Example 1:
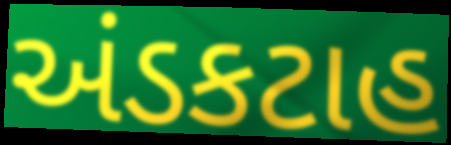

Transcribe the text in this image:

અંડકટાહ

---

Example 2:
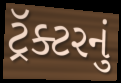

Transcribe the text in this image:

ટ્રૅક્ટરનું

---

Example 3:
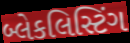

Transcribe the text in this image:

બ્લેકલિસ્ટિંગ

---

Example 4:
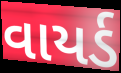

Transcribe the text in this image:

વાયર્ડ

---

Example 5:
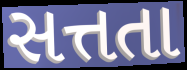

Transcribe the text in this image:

સત્તતા